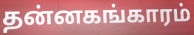
தன்னகங்காரம்